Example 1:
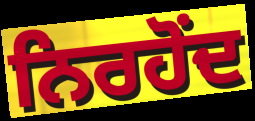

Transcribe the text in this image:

ਨਿਰਹੋਂਦ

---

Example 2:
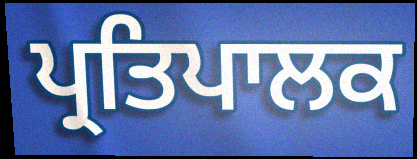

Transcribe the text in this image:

ਪ੍ਰਤਿਪਾਲਕ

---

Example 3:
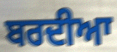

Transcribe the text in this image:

ਬਰਦੀਆ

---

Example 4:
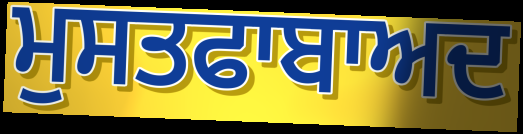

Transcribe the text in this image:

ਮੁਸਤਫਾਬਾਅਦ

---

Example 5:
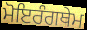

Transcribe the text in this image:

ਮੋਇਰੰਗਥੇਮ